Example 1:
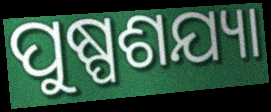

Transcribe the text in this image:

ପୁଷ୍ପଶଯ୍ୟା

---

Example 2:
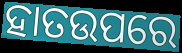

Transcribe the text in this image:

ହାତଉପରେ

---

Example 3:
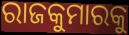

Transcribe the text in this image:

ରାଜକୁମାରକୁ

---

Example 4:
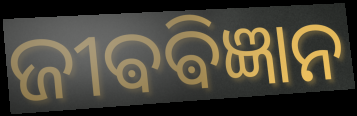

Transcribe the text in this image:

ଜୀଵଵିଜ୍ଞାନ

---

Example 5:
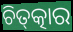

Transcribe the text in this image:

ଚିତ୍‌ତ୍କାର